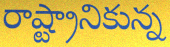
రాష్ట్రానికున్న